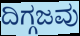
ದಿಗ್ಗಜವು